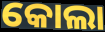
କୋଲା